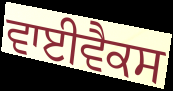
ਵਾਈਵੈਕਸ